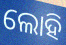
ଲୋହି